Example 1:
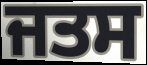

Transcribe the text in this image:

ਜਤਸ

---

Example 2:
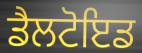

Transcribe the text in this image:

ਡੈਲਟੋਇਡ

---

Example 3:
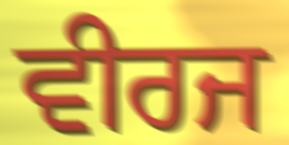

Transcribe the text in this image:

ਵੀਰਜ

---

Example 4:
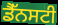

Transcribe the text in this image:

ਡੈੱਨਸਟੀ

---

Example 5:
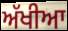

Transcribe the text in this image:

ਅੱਖੀਆ